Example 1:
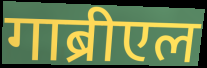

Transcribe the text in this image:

गाब्रीएल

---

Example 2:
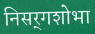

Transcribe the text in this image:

निसर्गशोभा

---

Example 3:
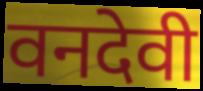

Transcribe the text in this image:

वनदेवी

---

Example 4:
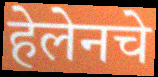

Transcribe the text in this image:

हेलेनचे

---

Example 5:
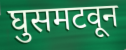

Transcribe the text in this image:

घुसमटवून